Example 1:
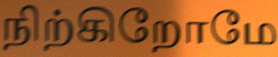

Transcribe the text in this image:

நிற்கிறோமே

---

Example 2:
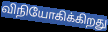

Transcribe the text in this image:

விநியோகிக்கிறது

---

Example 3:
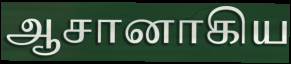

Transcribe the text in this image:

ஆசானாகிய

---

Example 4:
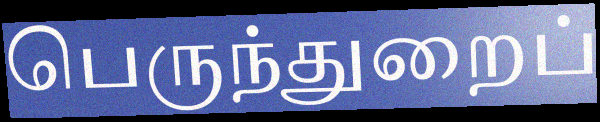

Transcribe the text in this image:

பெருந்துறைப்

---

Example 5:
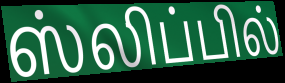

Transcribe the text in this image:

ஸ்லிப்பில்